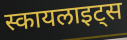
स्कायलाइट्स